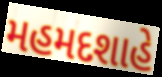
મહમદશાહે